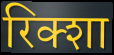
रिक्शा